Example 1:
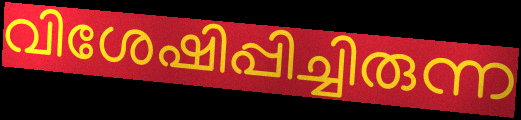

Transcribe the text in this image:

വിശേഷിപ്പിച്ചിരുന്ന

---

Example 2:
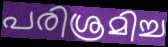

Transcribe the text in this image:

പരിശ്രമിച്ച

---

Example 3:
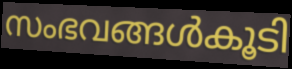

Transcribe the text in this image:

സംഭവങ്ങൾകൂടി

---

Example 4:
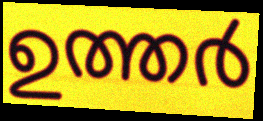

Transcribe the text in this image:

ഉത്തർ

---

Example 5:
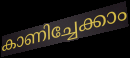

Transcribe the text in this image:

കാണിച്ചേക്കാം